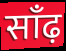
साँढ़